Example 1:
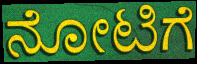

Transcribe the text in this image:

ನೋಟಿಗೆ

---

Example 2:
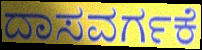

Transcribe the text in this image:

ದಾಸವರ್ಗಕೆ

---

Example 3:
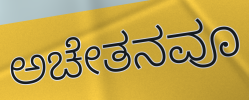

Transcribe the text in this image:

ಅಚೇತನವೂ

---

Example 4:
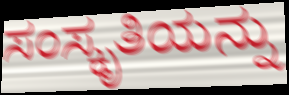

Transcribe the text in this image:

ಸಂಸ್ಕೃತಿಯನ್ನು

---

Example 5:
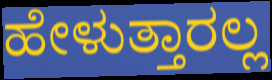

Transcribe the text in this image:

ಹೇಳುತ್ತಾರಲ್ಲ